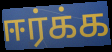
ஈர்க்க